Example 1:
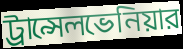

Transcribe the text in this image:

ট্রান্সেলভেনিয়ার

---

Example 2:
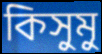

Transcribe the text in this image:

কিসুমু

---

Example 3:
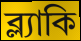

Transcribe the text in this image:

ব্ল্যাকি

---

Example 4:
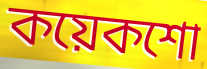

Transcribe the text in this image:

কয়েকশো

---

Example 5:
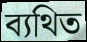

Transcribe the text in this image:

ব্যথিত